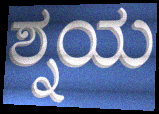
ಶ್ನಯ